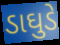
ડાઘુડે